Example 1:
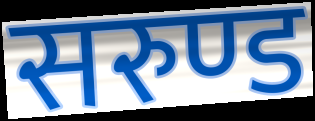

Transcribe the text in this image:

सरुण्ड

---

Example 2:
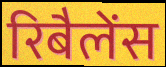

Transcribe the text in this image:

रिबैलेंस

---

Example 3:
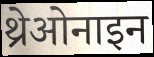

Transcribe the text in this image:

थ्रेओनाइन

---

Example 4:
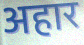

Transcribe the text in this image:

अहार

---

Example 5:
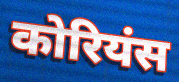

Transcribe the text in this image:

कोरियंस